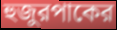
হুজুরপাকের